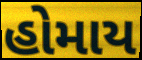
હોમાય